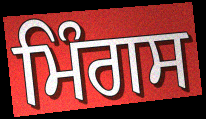
ਮਿੰਗਸ